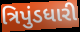
ત્રિપુંડધારી